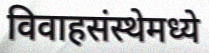
विवाहसंस्थेमध्ये